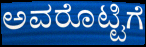
ಅವರೊಟ್ಟಿಗೆ